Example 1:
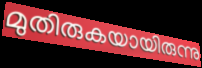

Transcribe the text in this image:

മുതിരുകയായിരുന്നു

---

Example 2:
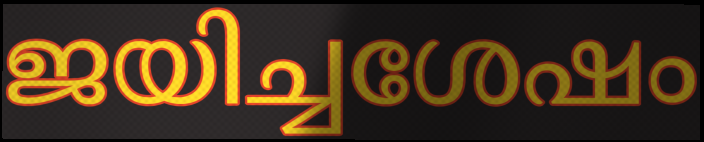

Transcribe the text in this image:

ജയിച്ചശേഷം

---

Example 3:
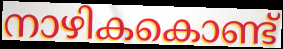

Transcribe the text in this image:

നാഴികകൊണ്ട്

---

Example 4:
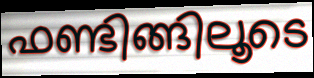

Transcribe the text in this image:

ഫണ്ടിങ്ങിലൂടെ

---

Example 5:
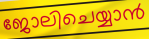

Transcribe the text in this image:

ജോലിചെയ്യാൻ